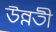
উন্নতী